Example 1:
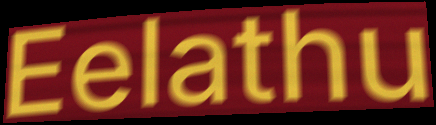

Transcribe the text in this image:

Eelathu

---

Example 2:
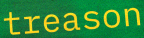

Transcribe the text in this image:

treason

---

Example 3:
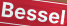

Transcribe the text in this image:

Bessel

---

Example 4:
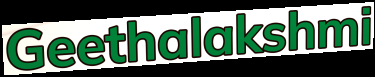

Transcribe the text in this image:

Geethalakshmi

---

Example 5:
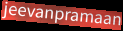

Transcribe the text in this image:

jeevanpramaan